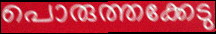
പൊരുത്തക്കേടു